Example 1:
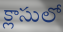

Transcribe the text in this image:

క్లాసులో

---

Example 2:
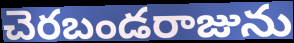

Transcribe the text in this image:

చెరబండరాజును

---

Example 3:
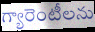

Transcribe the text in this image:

గ్యారెంటీలను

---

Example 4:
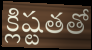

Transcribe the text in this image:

క్లిష్టతతో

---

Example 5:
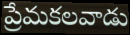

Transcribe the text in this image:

ప్రేమకలవాడు